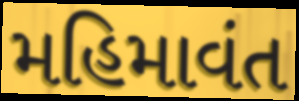
મહિમાવંત